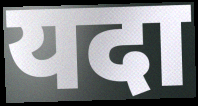
यदा